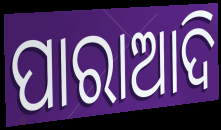
ପାରାଆଦି